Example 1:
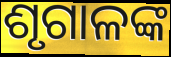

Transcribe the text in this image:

ଶୃଗାଳଙ୍କ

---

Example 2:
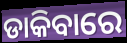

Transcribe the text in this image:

ଡାକିବାରେ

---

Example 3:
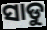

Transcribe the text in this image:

ସାଡୁ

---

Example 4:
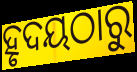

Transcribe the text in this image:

ହୃଦୟଠାରୁ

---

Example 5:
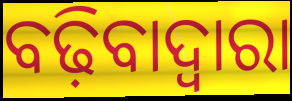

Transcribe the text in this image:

ବଢ଼ିବାଦ୍ୱାରା